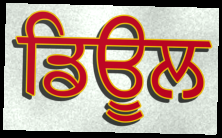
ਡਿਊਲ